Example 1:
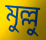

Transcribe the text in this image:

মুল্লু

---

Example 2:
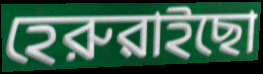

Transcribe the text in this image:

হেৰুৱাইছো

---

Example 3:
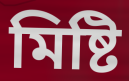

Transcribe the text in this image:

মিষ্টি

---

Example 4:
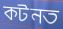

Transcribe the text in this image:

কটনত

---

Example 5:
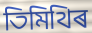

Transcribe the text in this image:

তিমিথিৰ